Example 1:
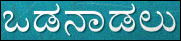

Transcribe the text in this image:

ಒಡನಾಡಲು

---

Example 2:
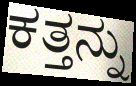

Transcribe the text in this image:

ಕತ್ತನ್ನು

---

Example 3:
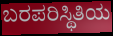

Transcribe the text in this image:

ಬರಪರಿಸ್ಥಿತಿಯ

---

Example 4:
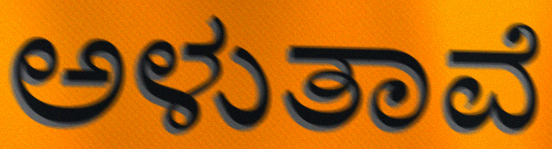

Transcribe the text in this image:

ಅಳುತಾವೆ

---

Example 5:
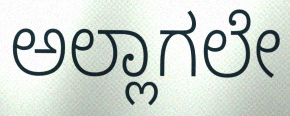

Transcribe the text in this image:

ಅಲ್ಲಾಗಲೇ